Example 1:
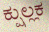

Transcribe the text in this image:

ಕ್ಷುಲ್ಲಕ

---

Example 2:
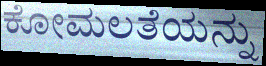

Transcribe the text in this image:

ಕೋಮಲತೆಯನ್ನು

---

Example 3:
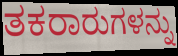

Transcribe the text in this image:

ತಕರಾರುಗಳನ್ನು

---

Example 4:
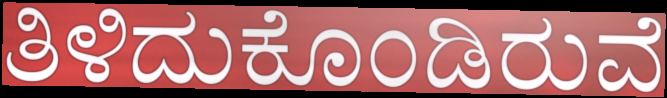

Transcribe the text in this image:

ತಿಳಿದುಕೊಂಡಿರುವೆ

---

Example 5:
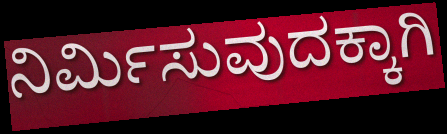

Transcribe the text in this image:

ನಿರ್ಮಿಸುವುದಕ್ಕಾಗಿ